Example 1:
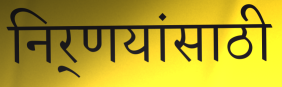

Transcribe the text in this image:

निर्णयांसाठी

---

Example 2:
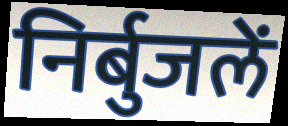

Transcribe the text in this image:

निर्बुजलें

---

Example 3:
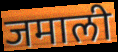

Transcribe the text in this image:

जमाली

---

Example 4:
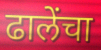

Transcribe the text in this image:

ढालेंचा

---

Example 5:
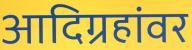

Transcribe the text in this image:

आदिग्रहांवर